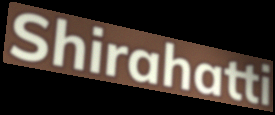
Shirahatti